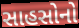
સાહસોનો